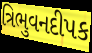
ત્રિભુવનદીપક